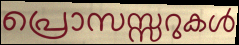
പ്രൊസസ്സറുകൾ